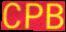
CPB